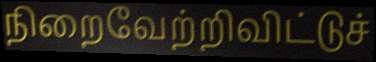
நிறைவேற்றிவிட்டுச்